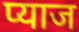
प्याज